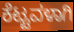
ಕೆಟ್ಟವಳಾಗಿ